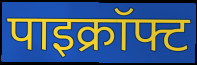
पाइक्रॉफ्ट